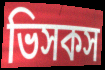
ভিসকস